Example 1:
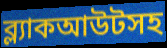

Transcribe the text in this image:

ব্ল্যাকআউটসহ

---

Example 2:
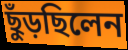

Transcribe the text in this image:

ছুঁড়ছিলেন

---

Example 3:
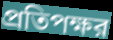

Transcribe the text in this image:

প্রতিপক্ষর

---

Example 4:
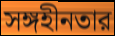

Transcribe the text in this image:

সঙ্গহীনতার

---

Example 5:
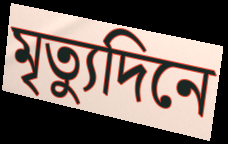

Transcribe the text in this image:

মৃত্যুদিনে